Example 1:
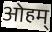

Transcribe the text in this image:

ओहम्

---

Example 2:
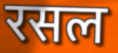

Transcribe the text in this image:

रसल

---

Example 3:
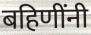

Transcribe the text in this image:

बहिणींनी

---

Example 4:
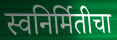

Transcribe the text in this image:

स्वनिर्मितीचा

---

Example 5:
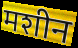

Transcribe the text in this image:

मशीन